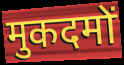
मुकदमों